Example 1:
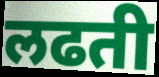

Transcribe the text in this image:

लढती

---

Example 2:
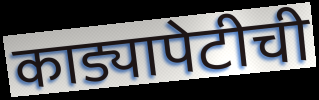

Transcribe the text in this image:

काड्यापेटीची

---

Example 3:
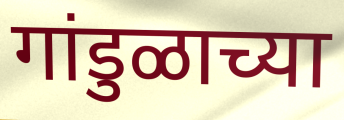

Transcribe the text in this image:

गांडुळाच्या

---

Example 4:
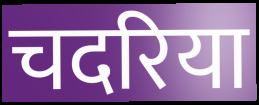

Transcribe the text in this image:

चदरिया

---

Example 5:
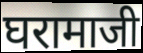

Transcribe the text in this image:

घरामाजी